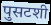
पुसटशी